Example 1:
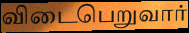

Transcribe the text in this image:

விடைபெறுவார்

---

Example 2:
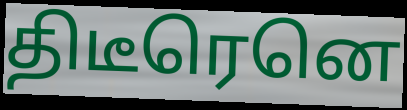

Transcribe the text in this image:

திடீரெனெ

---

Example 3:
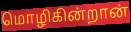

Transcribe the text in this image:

மொழிகின்றான்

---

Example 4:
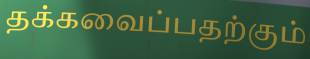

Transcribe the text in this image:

தக்கவைப்பதற்கும்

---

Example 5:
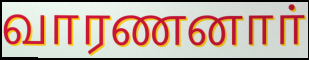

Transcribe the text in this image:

வாரணனார்